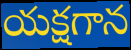
యక్షగాన